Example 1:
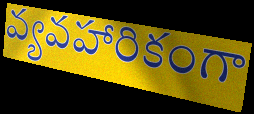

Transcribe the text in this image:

వ్యవహారికంగా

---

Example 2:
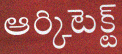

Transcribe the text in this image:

ఆర్కిటెక్ట్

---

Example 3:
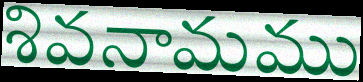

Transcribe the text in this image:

శివనామము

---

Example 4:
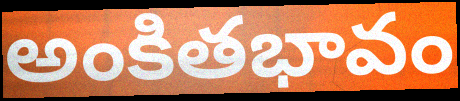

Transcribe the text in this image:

అంకితభావం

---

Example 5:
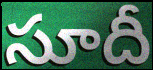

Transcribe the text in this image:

సూదీ